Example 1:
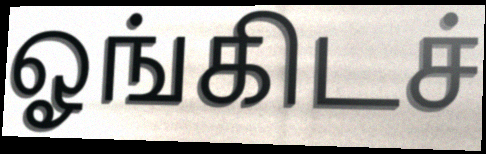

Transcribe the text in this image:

ஓங்கிடச்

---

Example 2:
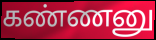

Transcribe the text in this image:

கண்ணனு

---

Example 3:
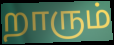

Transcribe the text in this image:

றாரும்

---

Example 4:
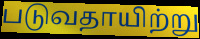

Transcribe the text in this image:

படுவதாயிற்று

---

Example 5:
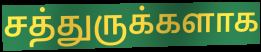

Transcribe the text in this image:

சத்துருக்களாக